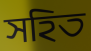
সহিত